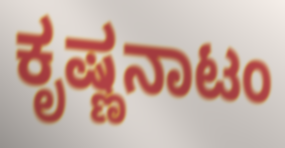
ಕೃಷ್ಣನಾಟಂ